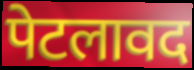
पेटलावद